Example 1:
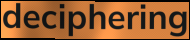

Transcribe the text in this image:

deciphering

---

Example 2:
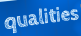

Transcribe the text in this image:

qualities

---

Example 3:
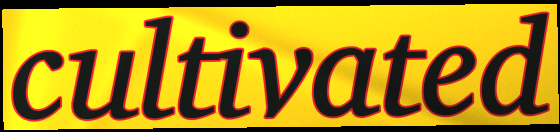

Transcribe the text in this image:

cultivated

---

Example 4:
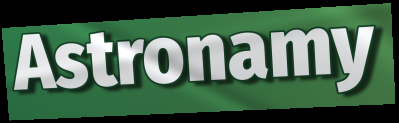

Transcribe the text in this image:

Astronamy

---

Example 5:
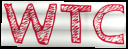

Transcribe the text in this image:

WTC